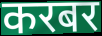
करबर